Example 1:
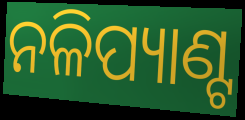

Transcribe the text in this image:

ନଳିପ୍ୟାଣ୍ଟ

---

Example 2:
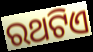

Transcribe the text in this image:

ରଥଟିଏ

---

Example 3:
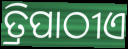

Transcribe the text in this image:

ତ୍ରିପାଠୀଏ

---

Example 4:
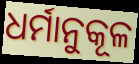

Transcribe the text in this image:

ଧର୍ମାନୁକୂଳ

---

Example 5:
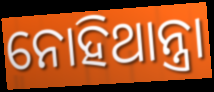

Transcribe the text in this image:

ନୋହିଥାନ୍ତ୍ରା